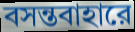
বসন্তবাহারে